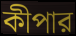
কীপার